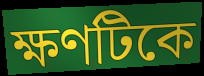
ক্ষণটিকে